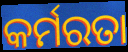
କର୍ମରତା